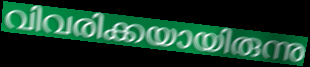
വിവരിക്കയായിരുന്നു